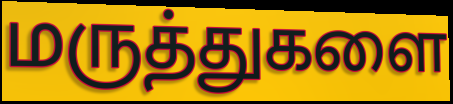
மருத்துகளை